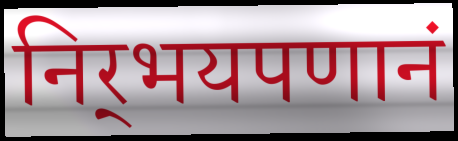
निर्भयपणानं